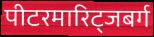
पीटरमारिट्जबर्ग